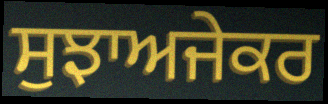
ਸੁਝਾਅਜੇਕਰ